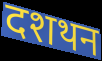
दशथन